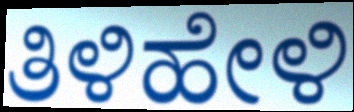
ತಿಳಿಹೇಳಿ